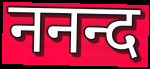
ननन्द